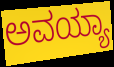
ಅವಯ್ಯಾ